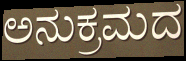
ಅನುಕ್ರಮದ